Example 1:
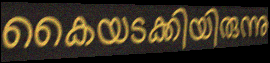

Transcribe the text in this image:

കൈയടക്കിയിരുന്നു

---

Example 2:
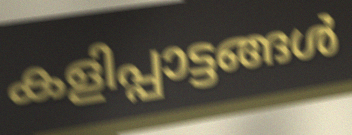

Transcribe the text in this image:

കളിപ്പാട്ടങ്ങൾ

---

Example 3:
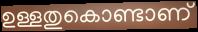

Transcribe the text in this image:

ഉള്ളതുകൊണ്ടാണ്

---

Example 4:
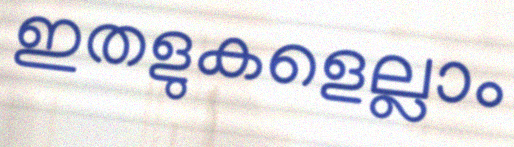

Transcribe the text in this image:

ഇതളുകളെല്ലാം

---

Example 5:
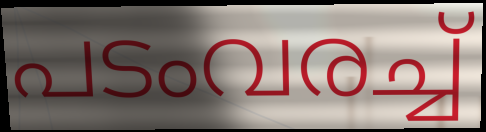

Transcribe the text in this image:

പടംവരച്ച്